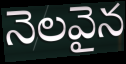
నెలవైన